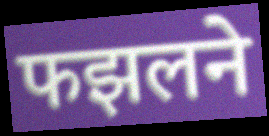
फझलने